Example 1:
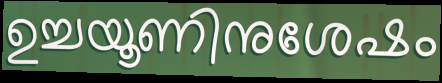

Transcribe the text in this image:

ഉച്ചയൂണിനുശേഷം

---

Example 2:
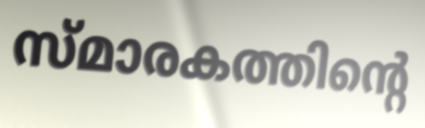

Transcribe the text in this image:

സ്മാരകത്തിന്റെ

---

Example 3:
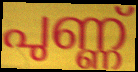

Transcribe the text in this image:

പുണ്ണ്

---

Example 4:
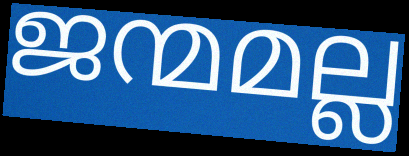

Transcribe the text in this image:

ജന്മമല്ല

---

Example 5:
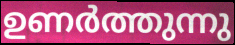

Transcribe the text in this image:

ഉണർത്തുന്നു